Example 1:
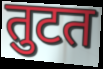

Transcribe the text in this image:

तुटत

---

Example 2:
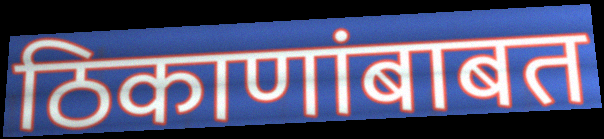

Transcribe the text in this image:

ठिकाणांबाबत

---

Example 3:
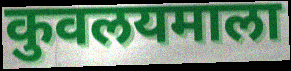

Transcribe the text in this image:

कुवलयमाला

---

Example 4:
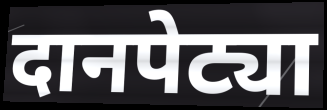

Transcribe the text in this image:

दानपेट्या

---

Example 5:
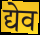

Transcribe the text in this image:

द्येव